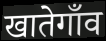
खातेगाँव